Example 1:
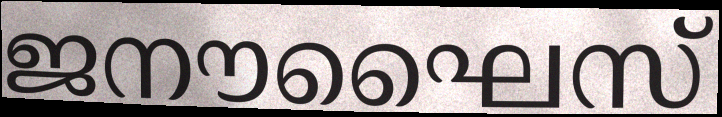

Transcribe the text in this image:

ജനൗഘൈസ്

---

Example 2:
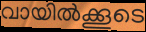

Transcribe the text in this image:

വായിൽക്കൂടെ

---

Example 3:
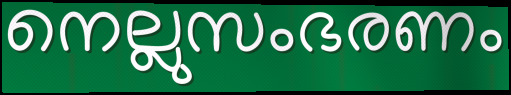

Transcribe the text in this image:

നെല്ലുസംഭരണം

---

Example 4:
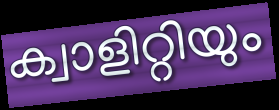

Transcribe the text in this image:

ക്വാളിറ്റിയും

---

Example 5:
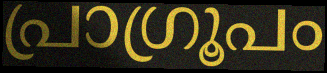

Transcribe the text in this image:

പ്രാഗ്രൂപം